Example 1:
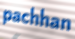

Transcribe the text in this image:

pachhan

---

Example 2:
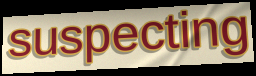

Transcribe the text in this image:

suspecting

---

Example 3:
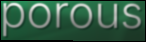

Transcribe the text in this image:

porous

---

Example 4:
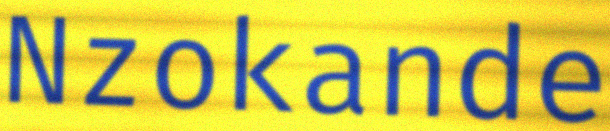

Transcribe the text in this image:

Nzokande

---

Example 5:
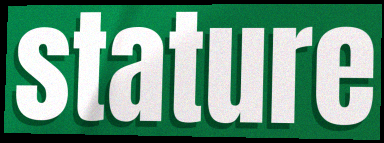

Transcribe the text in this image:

stature